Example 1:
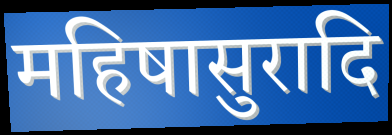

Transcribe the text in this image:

महिषासुरादि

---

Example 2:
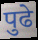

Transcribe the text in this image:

पुढे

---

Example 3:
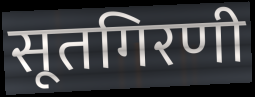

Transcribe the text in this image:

सूतगिरणी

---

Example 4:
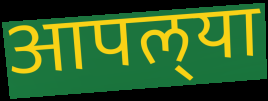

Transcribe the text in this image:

आपल्या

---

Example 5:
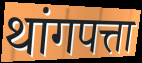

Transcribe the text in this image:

थांगपत्ता